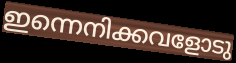
ഇന്നെനിക്കവളോടു